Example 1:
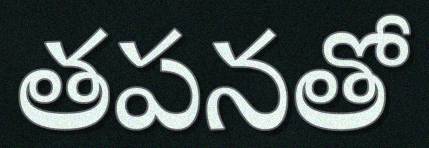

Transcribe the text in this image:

తపనతో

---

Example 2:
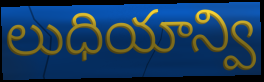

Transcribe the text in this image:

లుధియాన్వి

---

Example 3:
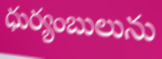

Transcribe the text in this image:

ధుర్యంబులును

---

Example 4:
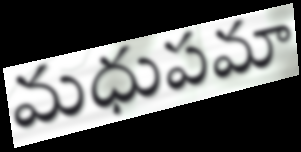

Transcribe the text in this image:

మధుపమా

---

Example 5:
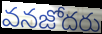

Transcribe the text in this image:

వనజోదరు